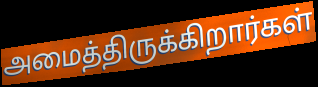
அமைத்திருக்கிறார்கள்